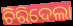
ଚିରିଦେଲା